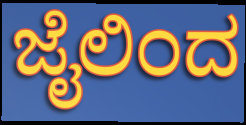
ಜೈಲಿಂದ